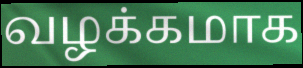
வழக்கமாக